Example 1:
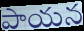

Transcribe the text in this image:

పాయన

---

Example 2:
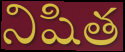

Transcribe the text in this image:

నిషిత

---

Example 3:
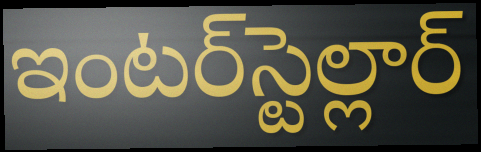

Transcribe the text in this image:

ఇంటర్‌స్టెల్లార్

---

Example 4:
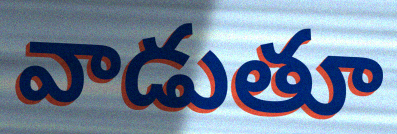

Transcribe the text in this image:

వాడుతూ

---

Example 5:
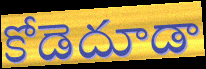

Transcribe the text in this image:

కోడెదూడా